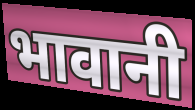
भावानी